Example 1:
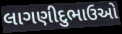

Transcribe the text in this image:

લાગણીદુભાઉઓ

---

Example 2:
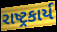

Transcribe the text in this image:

રાષ્ટ્રકાર્ય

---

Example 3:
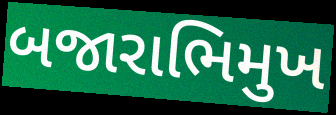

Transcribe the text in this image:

બજારાભિમુખ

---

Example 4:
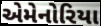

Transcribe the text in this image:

એમેનોરિયા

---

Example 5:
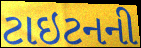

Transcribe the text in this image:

ટાઇટનની